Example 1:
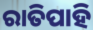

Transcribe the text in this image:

ରାତିପାହି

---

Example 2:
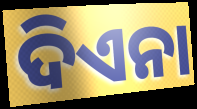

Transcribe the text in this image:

ଦିଏନା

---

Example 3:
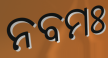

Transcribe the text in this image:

ନବମଃ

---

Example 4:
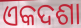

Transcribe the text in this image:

ଏକଦଶା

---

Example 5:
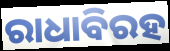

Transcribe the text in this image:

ରାଧାବିରହ